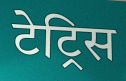
टेट्रिस